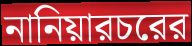
নানিয়ারচরের